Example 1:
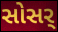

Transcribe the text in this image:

સોસર્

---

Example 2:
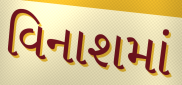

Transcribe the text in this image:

વિનાશમાં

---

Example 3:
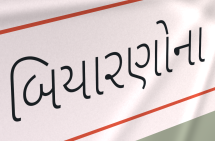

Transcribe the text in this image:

બિયારણોના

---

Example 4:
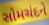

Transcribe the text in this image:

સોમચંદને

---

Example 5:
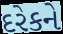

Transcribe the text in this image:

દરેકને